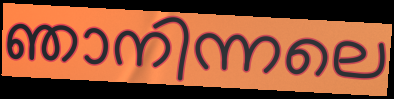
ഞാനിന്നലെ